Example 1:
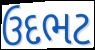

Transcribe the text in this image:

ઉદભટ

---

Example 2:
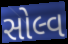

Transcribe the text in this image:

સોલ્વ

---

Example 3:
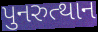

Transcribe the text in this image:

પુનરુત્થાન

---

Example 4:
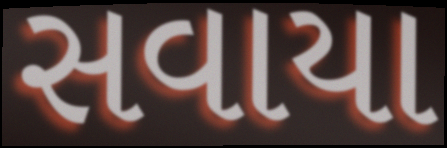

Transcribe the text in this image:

સવાયા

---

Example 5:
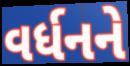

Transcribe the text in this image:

વર્ધનને